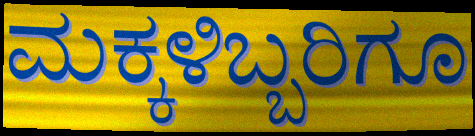
ಮಕ್ಕಳಿಬ್ಬರಿಗೂ